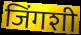
जिंगशी